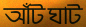
আঁটঘাট